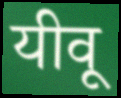
यीवू